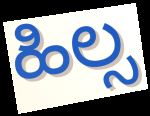
ಹಿಲ್ಸ